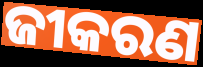
ଜୀକରଣ